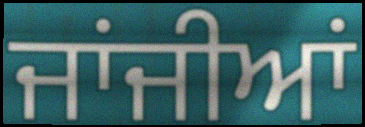
ਜਾਂਜੀਆਂ